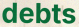
debts